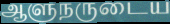
ஆளுநருடைய